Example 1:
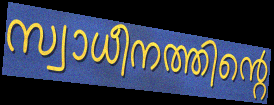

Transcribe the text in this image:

സ്വാധീനത്തിന്റെ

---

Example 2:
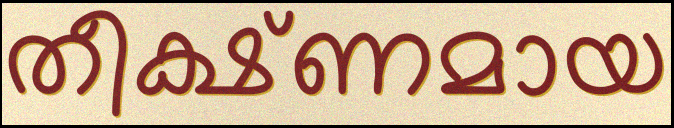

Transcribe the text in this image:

തീക്ഷ്ണമായ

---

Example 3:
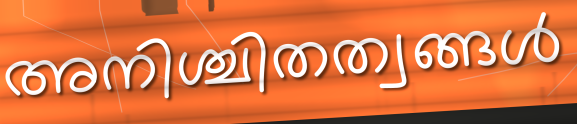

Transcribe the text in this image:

അനിശ്ചിതത്വങ്ങൾ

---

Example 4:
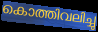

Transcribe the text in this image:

കൊത്തിവലിച്ചു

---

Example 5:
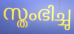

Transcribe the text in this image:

സ്തംഭിച്ചു